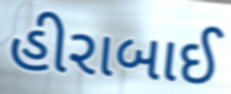
હીરાબાઈ